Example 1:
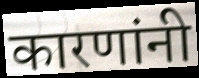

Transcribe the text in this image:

कारणांनी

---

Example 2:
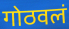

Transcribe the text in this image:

गोठवलं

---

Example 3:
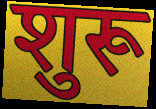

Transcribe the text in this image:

शुरू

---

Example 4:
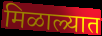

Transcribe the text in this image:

मिळाल्यात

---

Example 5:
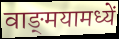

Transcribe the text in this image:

वाङ्‌मयामध्यें